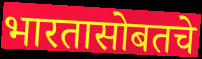
भारतासोबतचे